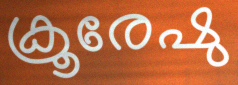
ക്രൂരേഷു